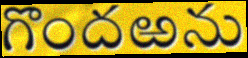
గొందఱను